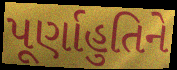
પૂર્ણાહુતિને